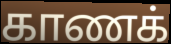
காணக்